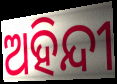
ଅହିନ୍ଦୀ